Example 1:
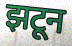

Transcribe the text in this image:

झटून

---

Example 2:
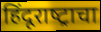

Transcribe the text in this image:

हिंदूराष्ट्राचा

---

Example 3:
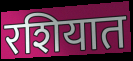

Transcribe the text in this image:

रशियात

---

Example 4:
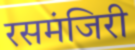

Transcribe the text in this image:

रसमंजिरी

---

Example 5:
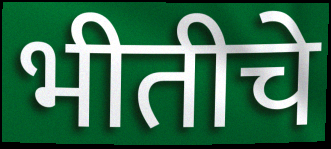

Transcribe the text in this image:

भीतीचे